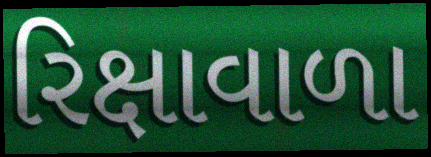
રિક્ષાવાળા